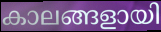
കാലങ്ങളായി